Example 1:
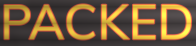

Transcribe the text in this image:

PACKED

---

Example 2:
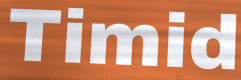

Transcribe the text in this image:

Timid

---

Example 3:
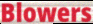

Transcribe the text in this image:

Blowers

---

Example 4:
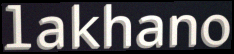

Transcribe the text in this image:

lakhano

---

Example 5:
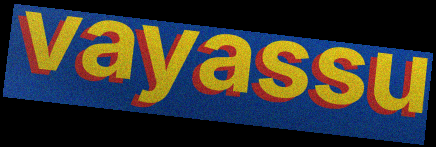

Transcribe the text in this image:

vayassu